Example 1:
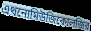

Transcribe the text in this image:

এথনোমিউজিকোলজির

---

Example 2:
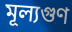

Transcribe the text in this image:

মূল্যগুণ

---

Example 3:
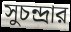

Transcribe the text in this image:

সুচন্দ্রার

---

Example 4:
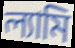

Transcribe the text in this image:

ল্যামি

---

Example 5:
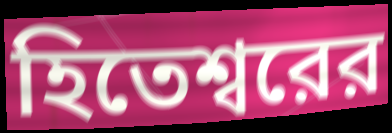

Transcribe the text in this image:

হিতেশ্বরের